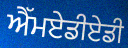
ਐੱਮਏਡੀਏਡੀ